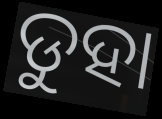
ଡୁହା